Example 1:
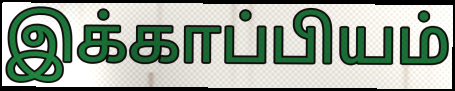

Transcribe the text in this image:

இக்காப்பியம்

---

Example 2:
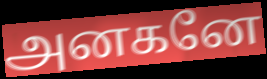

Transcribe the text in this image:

அனகனே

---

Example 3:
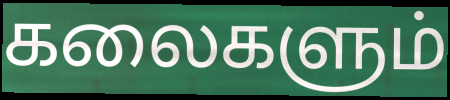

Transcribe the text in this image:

கலைகளும்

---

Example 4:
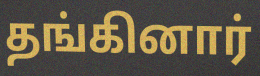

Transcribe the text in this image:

தங்கினார்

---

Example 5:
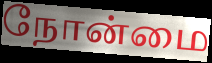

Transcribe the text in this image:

நோன்மை